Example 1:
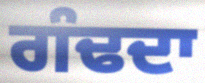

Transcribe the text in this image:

ਗੰਢਦਾ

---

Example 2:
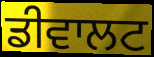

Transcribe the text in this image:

ਡੀਵਾਲਟ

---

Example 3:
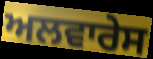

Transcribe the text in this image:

ਅਲਵਾਰੇਸ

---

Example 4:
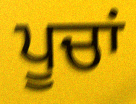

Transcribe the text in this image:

ਪੂਚਾਂ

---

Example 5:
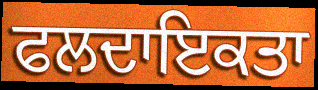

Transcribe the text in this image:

ਫਲਦਾਇਕਤਾ